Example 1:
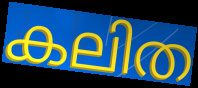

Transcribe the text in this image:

കലിത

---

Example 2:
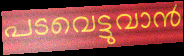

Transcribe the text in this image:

പടവെട്ടുവാൻ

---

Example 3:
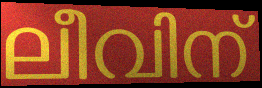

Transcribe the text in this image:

ലീവിന്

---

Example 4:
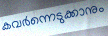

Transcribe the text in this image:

കവർന്നെടുക്കാനും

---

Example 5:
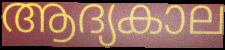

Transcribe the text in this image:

ആദ്യകാല